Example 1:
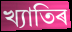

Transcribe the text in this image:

খ্যাতিৰ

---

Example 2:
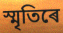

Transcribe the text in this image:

স্মৃতিৰে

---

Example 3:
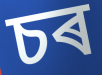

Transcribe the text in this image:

চৰ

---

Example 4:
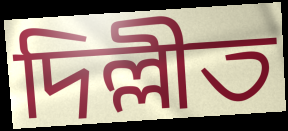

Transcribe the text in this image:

দিল্লীত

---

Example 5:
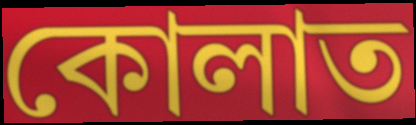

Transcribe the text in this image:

কোলাত